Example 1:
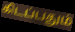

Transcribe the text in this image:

கிடப்பதும்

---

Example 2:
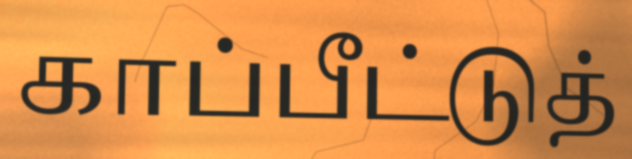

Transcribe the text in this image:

காப்பீட்டுத்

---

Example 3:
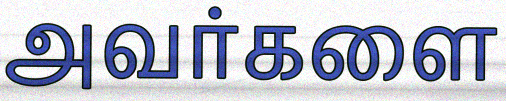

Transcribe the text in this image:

அவர்களை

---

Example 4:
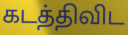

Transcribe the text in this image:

கடத்திவிட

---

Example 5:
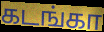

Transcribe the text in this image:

கடங்கா